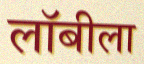
लॉबीला